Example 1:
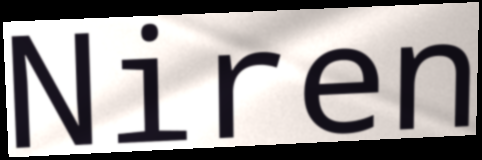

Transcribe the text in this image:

Niren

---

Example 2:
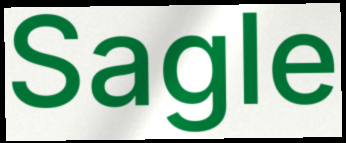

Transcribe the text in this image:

Sagle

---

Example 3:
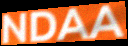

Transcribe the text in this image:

NDAA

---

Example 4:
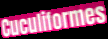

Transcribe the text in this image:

Cuculiformes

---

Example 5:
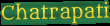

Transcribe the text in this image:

Chatrapati